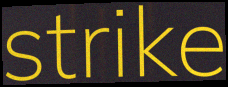
strike